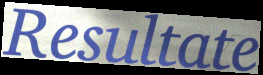
Resultate